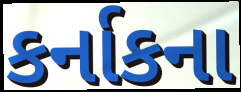
કર્નાકના